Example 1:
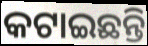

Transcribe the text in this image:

କଟାଇଛନ୍ତି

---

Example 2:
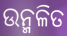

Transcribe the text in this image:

ଉନ୍ମଳିତ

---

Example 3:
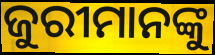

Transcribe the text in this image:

ଜୁରୀମାନଙ୍କୁ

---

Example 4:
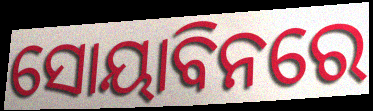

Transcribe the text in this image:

ସୋୟାବିନରେ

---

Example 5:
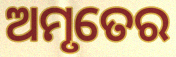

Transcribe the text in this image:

ଅମୃତେର